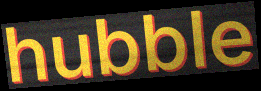
hubble